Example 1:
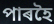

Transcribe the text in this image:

পাৰহৈ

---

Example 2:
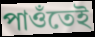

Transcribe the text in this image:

পাওঁতেই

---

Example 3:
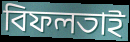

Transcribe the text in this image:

বিফলতাই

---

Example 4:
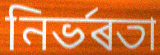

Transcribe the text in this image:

নিৰ্ভৰতা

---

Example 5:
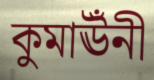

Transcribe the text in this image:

কুমাঊঁনী